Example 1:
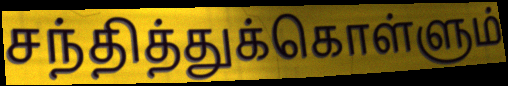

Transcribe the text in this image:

சந்தித்துக்கொள்ளும்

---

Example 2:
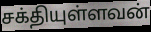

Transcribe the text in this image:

சக்தியுள்ளவன்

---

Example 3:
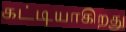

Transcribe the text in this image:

கட்டியாகிறது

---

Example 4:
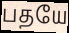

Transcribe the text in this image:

பதயே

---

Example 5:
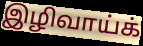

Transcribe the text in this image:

இழிவாய்க்